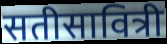
सतीसावित्री